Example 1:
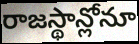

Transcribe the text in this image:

రాజస్థాన్లోనూ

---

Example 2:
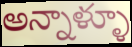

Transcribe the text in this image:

అన్నాళ్ళూ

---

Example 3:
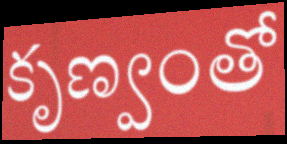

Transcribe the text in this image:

కృణ్వంతో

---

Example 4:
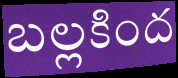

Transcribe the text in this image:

బల్లకింద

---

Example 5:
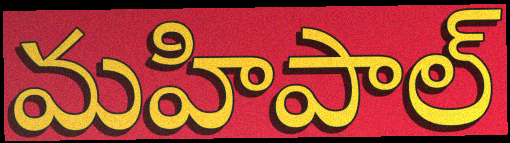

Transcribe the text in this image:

మహిపాల్